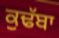
ਕੁਢੱਬਾ